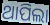
ଥାପିଲା